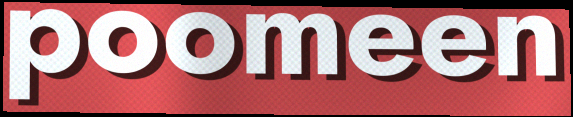
poomeen